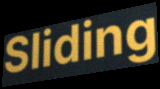
Sliding